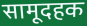
सामूदहक